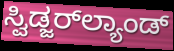
ಸ್ವಿಡ್ಜರ್‌ಲ್ಯಾಂಡ್